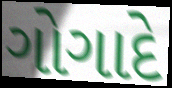
ગોગાદે